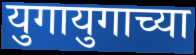
युगायुगाच्या